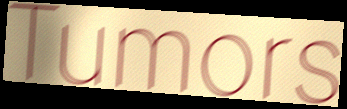
Tumors